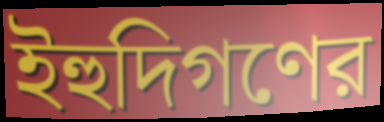
ইহুদিগণের